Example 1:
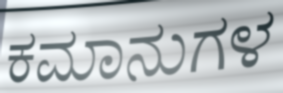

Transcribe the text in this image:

ಕಮಾನುಗಳ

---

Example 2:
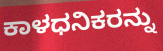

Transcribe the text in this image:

ಕಾಳಧನಿಕರನ್ನು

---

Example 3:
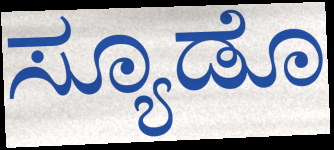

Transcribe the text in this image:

ಸ್ಯೂಡೊ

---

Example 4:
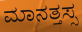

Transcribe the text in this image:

ಮಾನತ್ತಸ್ಸ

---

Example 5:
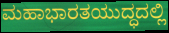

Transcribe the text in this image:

ಮಹಾಭಾರತಯುದ್ಧದಲ್ಲಿ